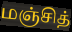
மஞ்சித்